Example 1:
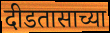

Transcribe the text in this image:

दीडतासाच्या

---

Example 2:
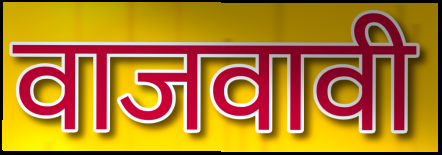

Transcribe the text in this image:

वाजवावी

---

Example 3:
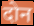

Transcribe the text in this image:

दोन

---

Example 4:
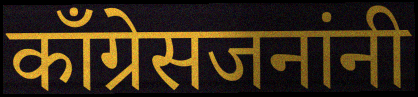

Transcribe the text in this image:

काँग्रेसजनांनी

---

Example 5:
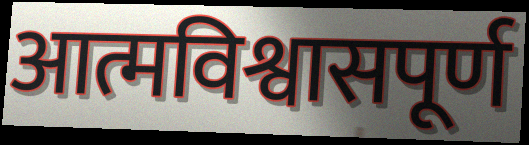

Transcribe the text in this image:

आत्मविश्वासपूर्ण